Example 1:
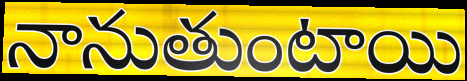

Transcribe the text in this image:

నానుతుంటాయి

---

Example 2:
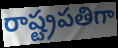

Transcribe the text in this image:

రాష్ట్రపతిగా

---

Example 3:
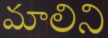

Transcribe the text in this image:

మాలిని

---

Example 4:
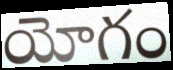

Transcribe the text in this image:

యోగం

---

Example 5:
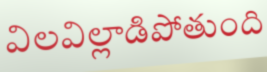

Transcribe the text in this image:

విలవిల్లాడిపోతుంది